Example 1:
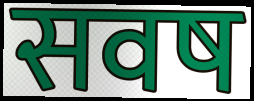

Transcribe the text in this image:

सवष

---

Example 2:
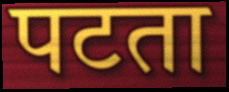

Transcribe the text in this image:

पटता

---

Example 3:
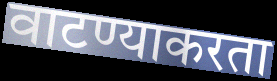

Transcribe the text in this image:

वाटण्याकरता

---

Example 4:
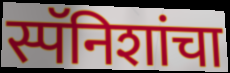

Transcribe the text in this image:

स्पॅनिशांचा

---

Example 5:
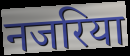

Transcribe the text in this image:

नजरिया